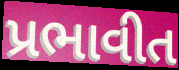
પ્રભાવીત